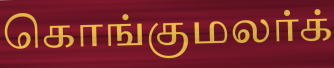
கொங்குமலர்க்